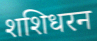
शशिधरन